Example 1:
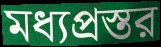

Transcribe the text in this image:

মধ্যপ্রস্তর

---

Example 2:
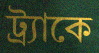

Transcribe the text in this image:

ট্র্যাকে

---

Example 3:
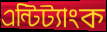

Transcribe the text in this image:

এন্টিট্যাংক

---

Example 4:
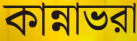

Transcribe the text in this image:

কান্নাভরা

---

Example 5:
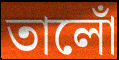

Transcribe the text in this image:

তালোঁ